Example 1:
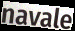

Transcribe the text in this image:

navale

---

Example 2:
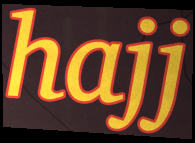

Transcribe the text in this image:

hajj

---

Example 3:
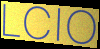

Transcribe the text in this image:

LCIO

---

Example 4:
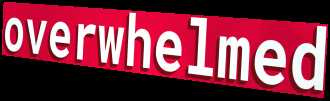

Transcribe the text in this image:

overwhelmed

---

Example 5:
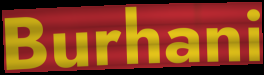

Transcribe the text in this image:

Burhani